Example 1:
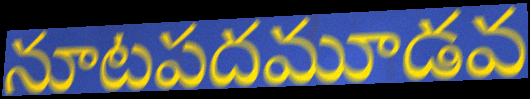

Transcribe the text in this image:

నూటపదమూడవ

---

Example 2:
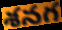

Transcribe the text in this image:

శనగ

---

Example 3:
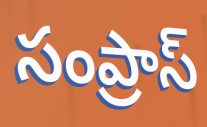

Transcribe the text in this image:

సంప్రాస్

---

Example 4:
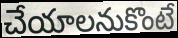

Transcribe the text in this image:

చేయాలనుకొంటే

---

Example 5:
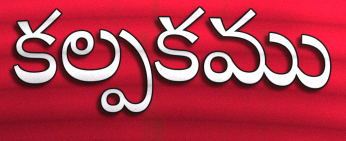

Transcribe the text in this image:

కల్పకము